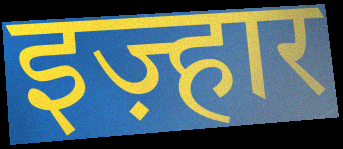
इज़्हार